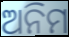
ଅନିମ